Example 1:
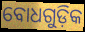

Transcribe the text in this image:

ବୋଧଗୁଡ଼ିକ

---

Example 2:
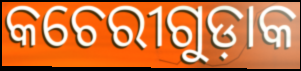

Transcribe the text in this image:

କଚେରୀଗୁଡ଼ାକ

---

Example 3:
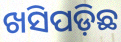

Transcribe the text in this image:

ଖସିପଡ଼ିଛ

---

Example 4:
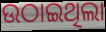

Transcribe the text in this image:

ଉଠାଇଥିଲା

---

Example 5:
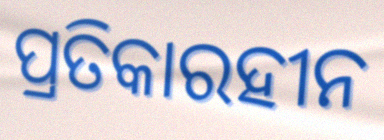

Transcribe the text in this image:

ପ୍ରତିକାରହୀନ